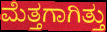
ಮೆತ್ತಗಾಗಿತ್ತು